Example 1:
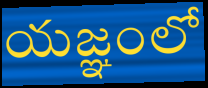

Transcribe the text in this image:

యజ్ఞంలో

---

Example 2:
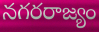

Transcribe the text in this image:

నగరరాజ్యం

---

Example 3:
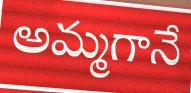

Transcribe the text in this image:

అమ్మగానే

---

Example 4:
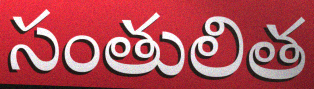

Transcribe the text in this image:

సంతులిత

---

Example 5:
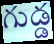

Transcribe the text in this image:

గుడ్డ